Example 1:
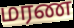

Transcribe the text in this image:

மரண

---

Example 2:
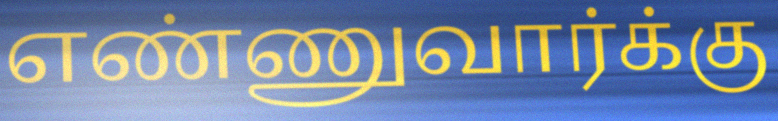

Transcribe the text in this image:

எண்ணுவார்க்கு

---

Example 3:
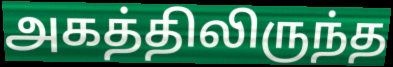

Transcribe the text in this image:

அகத்திலிருந்த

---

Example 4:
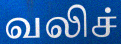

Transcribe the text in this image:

வலிச்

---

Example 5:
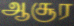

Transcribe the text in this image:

ஆசூர